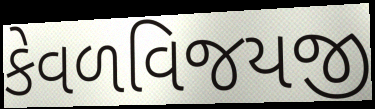
કેવળવિજયજી